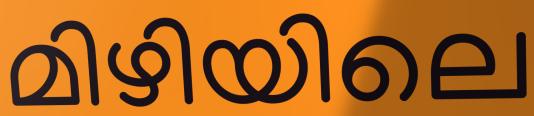
മിഴിയിലെ